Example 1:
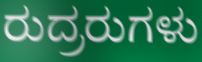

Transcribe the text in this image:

ರುದ್ರರುಗಳು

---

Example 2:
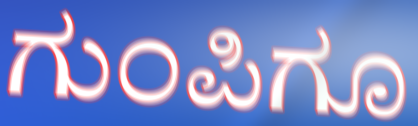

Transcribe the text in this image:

ಗುಂಪಿಗೂ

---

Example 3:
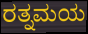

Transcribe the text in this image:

ರತ್ನಮಯ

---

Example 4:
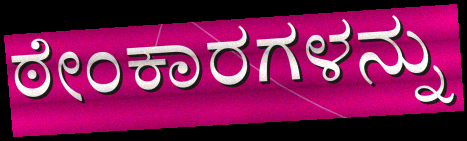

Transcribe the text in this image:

ಠೇಂಕಾರಗಳನ್ನು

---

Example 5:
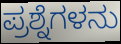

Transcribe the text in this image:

ಪ್ರಶ್ನೆಗಳನು